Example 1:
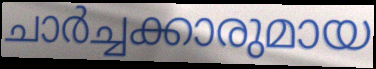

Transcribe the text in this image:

ചാർച്ചക്കാരുമായ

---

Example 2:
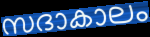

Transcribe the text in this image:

സദാകാലം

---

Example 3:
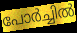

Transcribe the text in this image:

പോർച്ചിൽ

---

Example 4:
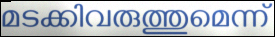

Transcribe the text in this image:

മടക്കിവരുത്തുമെന്ന്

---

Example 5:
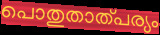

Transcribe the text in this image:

പൊതുതാത്പര്യം